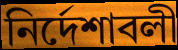
নির্দেশাবলী